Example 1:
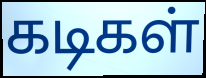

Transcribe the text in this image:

கடிகள்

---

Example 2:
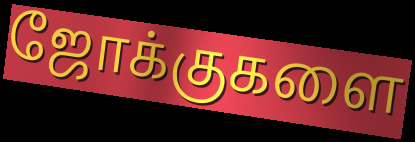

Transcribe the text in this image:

ஜோக்குகளை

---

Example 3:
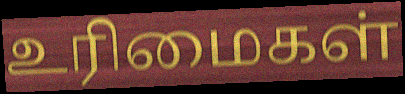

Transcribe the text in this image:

உரிமைகள்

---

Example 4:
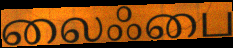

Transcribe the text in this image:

லைஃபை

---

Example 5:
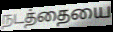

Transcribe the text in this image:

நடத்தையை